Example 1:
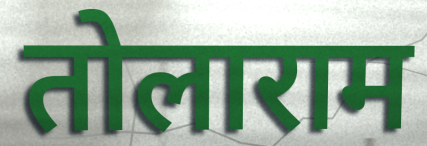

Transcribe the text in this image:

तोलाराम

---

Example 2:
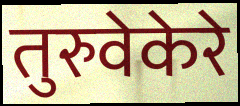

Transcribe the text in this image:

तुरुवेकेरे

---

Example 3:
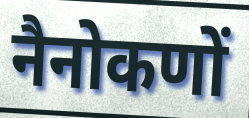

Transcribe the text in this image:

नैनोकणों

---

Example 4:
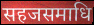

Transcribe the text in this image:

सहजसमाधि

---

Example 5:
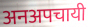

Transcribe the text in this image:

अनअपचायी